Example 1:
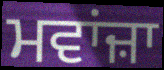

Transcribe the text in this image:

ਮਵਾਂਜ਼ਾ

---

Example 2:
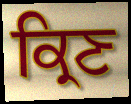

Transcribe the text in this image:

ਕ੍ਰਿਣ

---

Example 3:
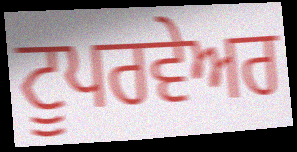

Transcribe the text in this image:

ਟੂਪਰਵੇਅਰ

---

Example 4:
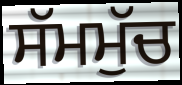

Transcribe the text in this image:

ਸੱਮਮੁੱਚ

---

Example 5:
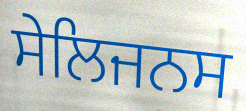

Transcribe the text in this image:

ਸੇਲਿਜਨਸ